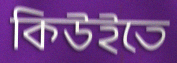
কিউইতে